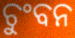
ଚୁଂବନ